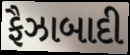
ફૈઝાબાદી